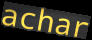
achar